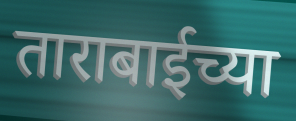
ताराबाईच्या